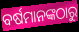
ବର୍ଷମାନଙ୍କଠାରୁ